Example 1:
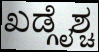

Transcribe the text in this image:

ಖಡ್ಗೈಶ್ಚ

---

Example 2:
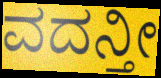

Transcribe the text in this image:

ವದನ್ತೀ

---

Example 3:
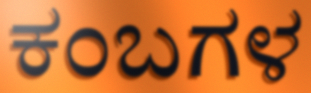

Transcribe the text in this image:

ಕಂಬಗಳ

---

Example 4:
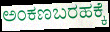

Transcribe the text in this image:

ಅಂಕಣಬರಹಕ್ಕೆ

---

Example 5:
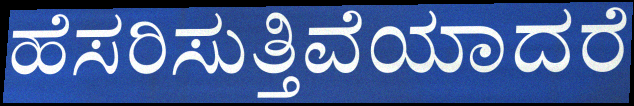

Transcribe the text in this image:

ಹೆಸರಿಸುತ್ತಿವೆಯಾದರೆ